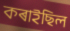
কৰাইছিল